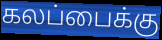
கலப்பைக்கு